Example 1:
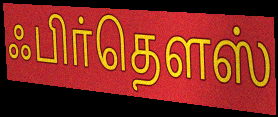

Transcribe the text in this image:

ஃபிர்தௌஸ்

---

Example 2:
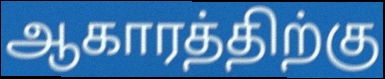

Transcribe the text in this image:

ஆகாரத்திற்கு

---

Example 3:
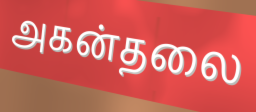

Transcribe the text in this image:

அகன்தலை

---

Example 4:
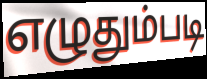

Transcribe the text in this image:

எழுதும்படி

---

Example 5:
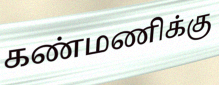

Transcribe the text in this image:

கண்மணிக்கு